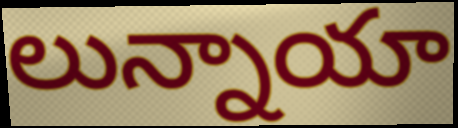
లున్నాయా